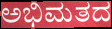
ಅಭಿಮತದ